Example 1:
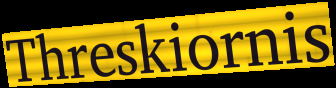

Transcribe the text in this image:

Threskiornis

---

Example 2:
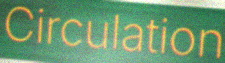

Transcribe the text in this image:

Circulation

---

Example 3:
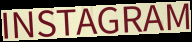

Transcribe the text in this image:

INSTAGRAM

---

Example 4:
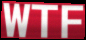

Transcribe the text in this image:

WTF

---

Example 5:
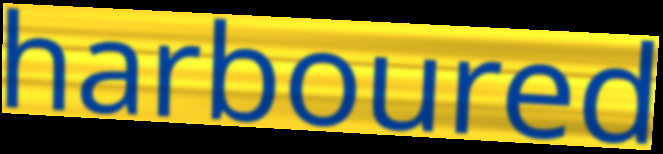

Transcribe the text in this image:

harboured